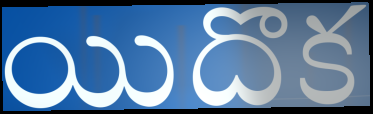
యిదొక